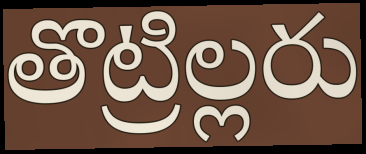
తొట్రిల్లరు